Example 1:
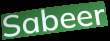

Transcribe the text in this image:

Sabeer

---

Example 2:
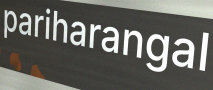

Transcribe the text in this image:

pariharangal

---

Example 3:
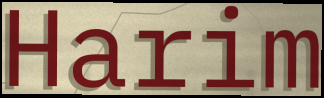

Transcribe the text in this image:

Harim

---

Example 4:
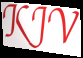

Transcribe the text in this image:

KJV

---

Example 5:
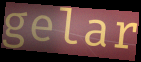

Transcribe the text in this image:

gelar